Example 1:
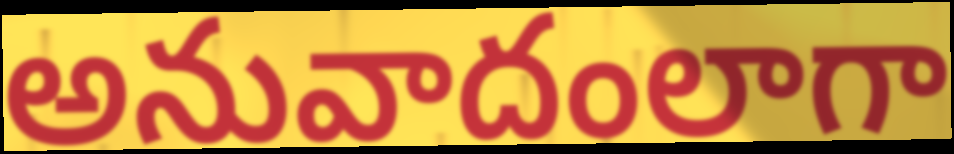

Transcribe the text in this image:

అనువాదంలాగా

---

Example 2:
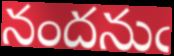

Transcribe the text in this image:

నందనుఁ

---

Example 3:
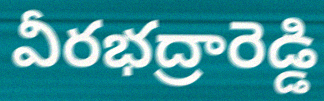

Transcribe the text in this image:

వీరభద్రారెడ్డి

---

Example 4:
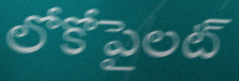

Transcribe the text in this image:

లోకోపైలట్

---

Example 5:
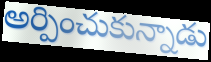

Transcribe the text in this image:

అర్పించుకున్నాడు